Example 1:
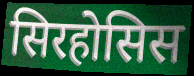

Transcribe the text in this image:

सिरहोसिस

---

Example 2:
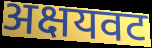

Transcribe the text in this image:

अक्षयवट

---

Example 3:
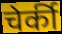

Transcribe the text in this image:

चेर्की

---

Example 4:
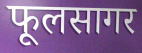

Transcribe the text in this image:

फूलसागर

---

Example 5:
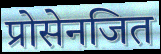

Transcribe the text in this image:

प्रोसेनजित